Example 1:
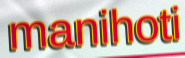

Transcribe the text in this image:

manihoti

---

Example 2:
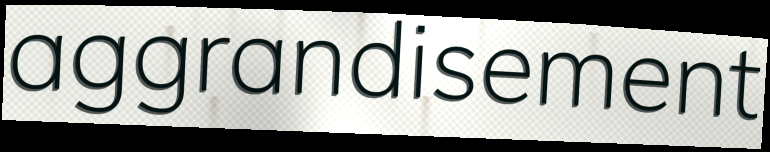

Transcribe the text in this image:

aggrandisement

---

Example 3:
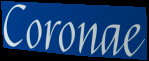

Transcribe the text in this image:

Coronae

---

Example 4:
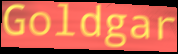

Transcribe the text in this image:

Goldgar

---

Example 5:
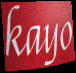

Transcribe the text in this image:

kayo